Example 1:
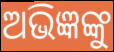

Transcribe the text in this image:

ଅଭିଜ୍ଞଙ୍କୁ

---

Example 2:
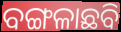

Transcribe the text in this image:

ବଙ୍ଗଳାଛବି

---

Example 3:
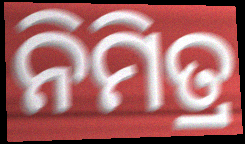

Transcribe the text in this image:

ନିମିତ୍ର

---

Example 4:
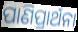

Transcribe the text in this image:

ପାଣିପ୍ରାର୍ଥନା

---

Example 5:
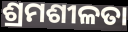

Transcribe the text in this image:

ଶ୍ରମଶୀଳତା